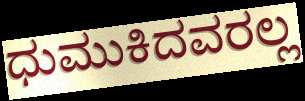
ಧುಮುಕಿದವರಲ್ಲ